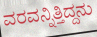
ವರವನ್ನಿತ್ತಿದ್ದನು